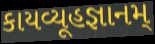
કાયવ્યૂહજ્ઞાનમ્